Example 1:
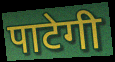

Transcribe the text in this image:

पाटेगी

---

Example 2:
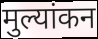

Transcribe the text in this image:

मुल्यांकन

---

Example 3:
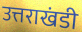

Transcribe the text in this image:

उत्तराखंडी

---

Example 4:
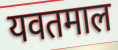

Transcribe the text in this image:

यवतमाल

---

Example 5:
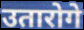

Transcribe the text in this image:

उतारोगे